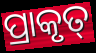
ପ୍ରାକୃତ୍